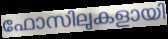
ഫോസിലുകളായി